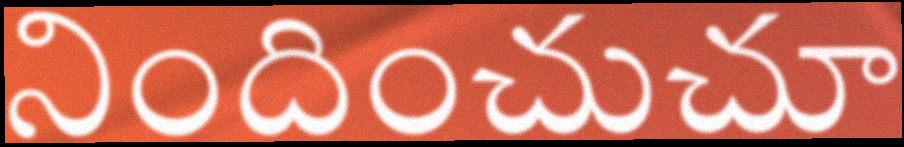
నిందించుచూ